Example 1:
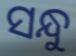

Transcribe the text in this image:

ସନ୍ଧୁ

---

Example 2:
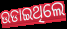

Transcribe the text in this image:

ଉଡାଇଥିଲେ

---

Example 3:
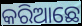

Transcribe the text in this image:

କରିଆଛେ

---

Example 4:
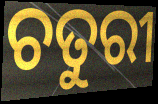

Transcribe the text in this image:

ଚତୁରୀ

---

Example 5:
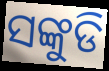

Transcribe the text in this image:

ସଙ୍କୁଡି